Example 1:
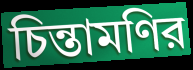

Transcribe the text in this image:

চিন্তামণির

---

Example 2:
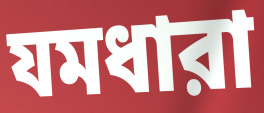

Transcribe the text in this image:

যমধারা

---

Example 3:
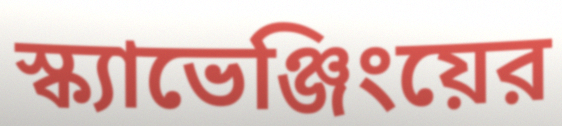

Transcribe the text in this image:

স্ক্যাভেঞ্জিংয়ের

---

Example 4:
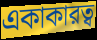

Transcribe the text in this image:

একাকারত্ব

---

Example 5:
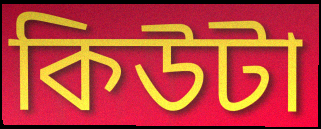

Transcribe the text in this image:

কিউটা